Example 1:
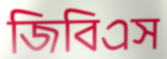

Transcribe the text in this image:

জিবিএস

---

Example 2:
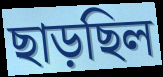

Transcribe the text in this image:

ছাড়ছিল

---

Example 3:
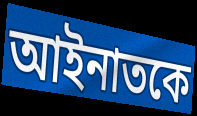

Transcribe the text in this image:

আইনাতকে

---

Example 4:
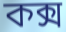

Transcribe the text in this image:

কক্স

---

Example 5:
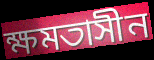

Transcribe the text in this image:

ক্ষমতাসীন